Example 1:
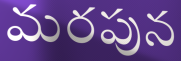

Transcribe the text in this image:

మరపున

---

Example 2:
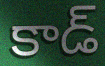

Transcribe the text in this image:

కాడ్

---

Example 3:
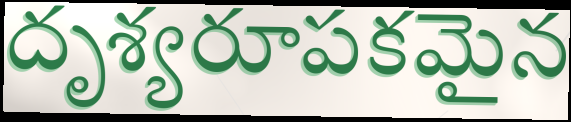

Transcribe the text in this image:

దృశ్యరూపకమైన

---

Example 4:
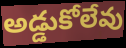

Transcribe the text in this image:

అడ్డుకోలేవు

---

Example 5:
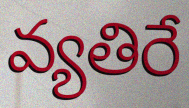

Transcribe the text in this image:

వ్యతిరే